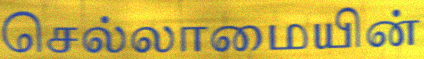
செல்லாமையின்